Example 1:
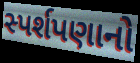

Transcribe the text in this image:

સ્પર્શપણાનો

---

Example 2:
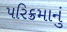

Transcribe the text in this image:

પરિક્રમાનું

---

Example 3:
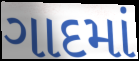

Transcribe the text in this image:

ગાદમાં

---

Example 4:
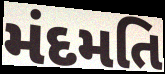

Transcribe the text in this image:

મંદમતિ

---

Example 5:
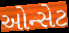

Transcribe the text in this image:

ઓન્સેટ